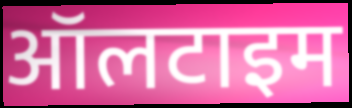
ऑलटाइम